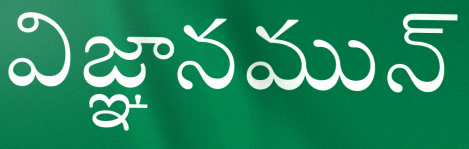
విజ్ఞానమున్